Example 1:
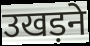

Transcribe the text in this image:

उखड़ने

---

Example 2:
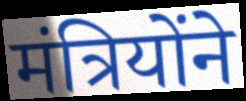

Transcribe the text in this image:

मंत्रियोंने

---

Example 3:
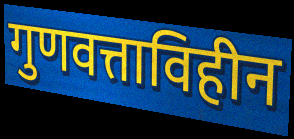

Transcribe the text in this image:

गुणवत्ताविहीन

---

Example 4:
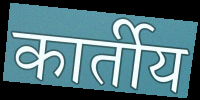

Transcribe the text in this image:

कार्तीय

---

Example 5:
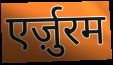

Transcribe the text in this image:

एर्ज़ुरम